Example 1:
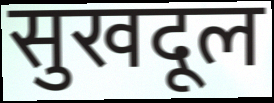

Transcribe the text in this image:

सुखदूल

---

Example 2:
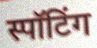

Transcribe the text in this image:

स्पॉटिंग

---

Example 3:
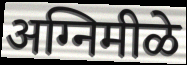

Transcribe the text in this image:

अग्निमीळे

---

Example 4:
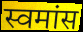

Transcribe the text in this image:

स्वमांस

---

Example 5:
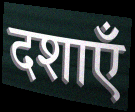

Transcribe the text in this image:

दशाएँ